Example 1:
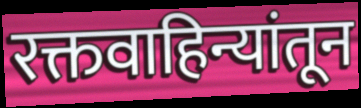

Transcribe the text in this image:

रक्तवाहिन्यांतून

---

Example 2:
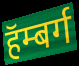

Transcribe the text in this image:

हॅम्बर्ग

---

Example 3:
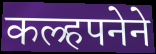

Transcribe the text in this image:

कल्हपनेने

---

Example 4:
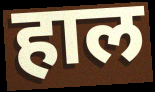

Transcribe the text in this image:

हाल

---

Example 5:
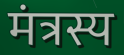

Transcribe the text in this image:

मंत्रस्य